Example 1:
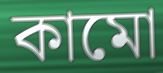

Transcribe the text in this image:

কামো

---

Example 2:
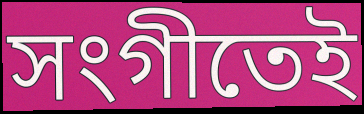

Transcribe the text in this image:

সংগীতেই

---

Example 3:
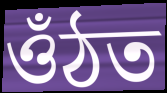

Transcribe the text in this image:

ওঁঠত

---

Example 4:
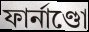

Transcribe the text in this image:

ফাৰ্নাণ্ডো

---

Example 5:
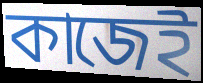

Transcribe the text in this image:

কাজেই